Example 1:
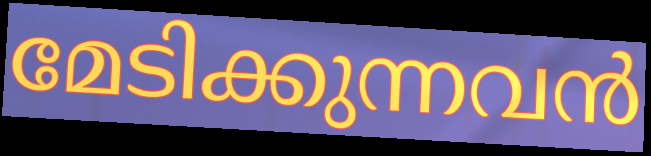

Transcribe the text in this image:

മേടിക്കുന്നവൻ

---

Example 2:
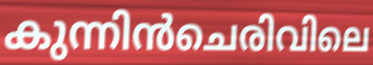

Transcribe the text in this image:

കുന്നിൻചെരിവിലെ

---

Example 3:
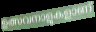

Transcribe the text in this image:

ഉത്സവനാളുകളാണ്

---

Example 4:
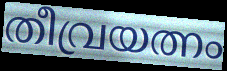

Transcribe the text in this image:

തീവ്രയത്നം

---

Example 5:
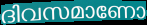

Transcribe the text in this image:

ദിവസമാണോ